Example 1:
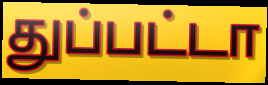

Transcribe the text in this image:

துப்பட்டா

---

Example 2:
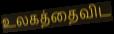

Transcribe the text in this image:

உலகத்தைவிட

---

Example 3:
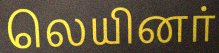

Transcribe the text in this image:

லெயினர்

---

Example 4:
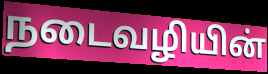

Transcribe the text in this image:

நடைவழியின்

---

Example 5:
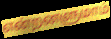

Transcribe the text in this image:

என்றனளுமாம்